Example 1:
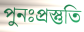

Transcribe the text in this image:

পুনঃপ্রস্তুতি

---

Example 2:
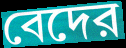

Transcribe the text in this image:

বেদের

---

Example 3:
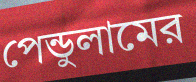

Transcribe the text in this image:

পেন্ডুলামের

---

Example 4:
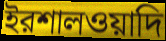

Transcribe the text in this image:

ইরশালওয়াদি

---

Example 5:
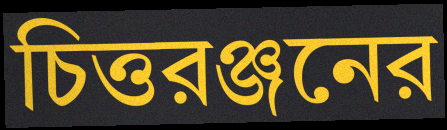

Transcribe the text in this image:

চিত্তরঞ্জনের